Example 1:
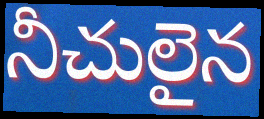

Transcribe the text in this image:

నీచులైన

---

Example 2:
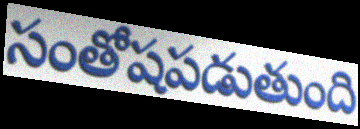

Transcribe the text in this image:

సంతోషపడుతుంది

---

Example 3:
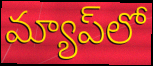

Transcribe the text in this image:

మ్యాప్‌లో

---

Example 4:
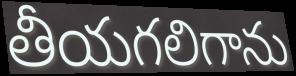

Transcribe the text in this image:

తీయగలిగాను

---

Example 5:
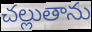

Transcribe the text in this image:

చల్లుతాను